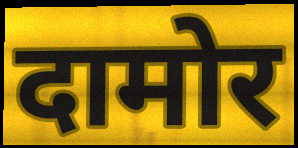
दामोर